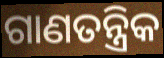
ଗାଣତନ୍ତ୍ରିକ